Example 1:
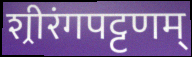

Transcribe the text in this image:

श्रीरंगपट्टणम्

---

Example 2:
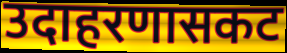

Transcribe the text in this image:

उदाहरणासकट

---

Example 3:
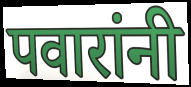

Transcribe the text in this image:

पवारांनी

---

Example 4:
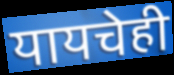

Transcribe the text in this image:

यायचेही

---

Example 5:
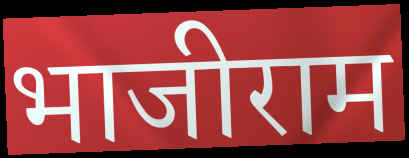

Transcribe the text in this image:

भाजीराम